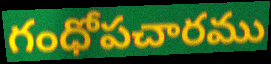
గంధోపచారము